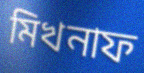
মিখনাফ